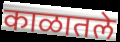
काळातले